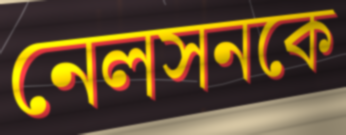
নেলসনকে